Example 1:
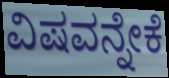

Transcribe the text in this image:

ವಿಷವನ್ನೇಕೆ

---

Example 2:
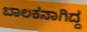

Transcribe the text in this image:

ಬಾಲಕನಾಗಿದ್ದ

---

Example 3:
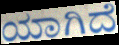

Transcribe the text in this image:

ಯಾಗಿದೆ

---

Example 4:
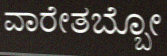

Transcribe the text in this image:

ವಾರೇತಬ್ಬೋ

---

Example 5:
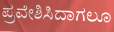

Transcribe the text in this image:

ಪ್ರವೇಶಿಸಿದಾಗಲೂ